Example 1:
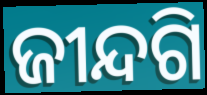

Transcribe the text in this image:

ଜୀନ୍ଦଗି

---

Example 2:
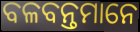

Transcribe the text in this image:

ବଳବନ୍ତମାନେ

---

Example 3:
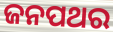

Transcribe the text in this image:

ଜନପଥର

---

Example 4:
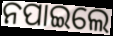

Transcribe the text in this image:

ନପାଇଲେ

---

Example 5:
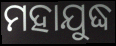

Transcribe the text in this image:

ମହାଯୁଦ୍ଧ